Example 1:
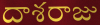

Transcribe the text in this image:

దాశరాజు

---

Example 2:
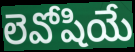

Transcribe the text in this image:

లెవోషియే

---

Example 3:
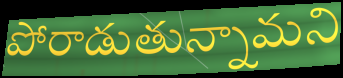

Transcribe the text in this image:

పోరాడుతున్నామని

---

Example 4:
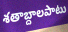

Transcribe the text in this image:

శతాబ్దాలపాటు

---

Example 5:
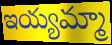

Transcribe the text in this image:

ఇయ్యమ్మా